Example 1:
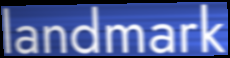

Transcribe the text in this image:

landmark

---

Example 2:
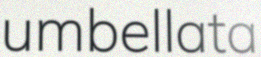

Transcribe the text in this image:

umbellata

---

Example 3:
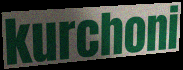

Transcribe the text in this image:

kurchoni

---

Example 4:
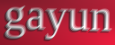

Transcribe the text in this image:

gayun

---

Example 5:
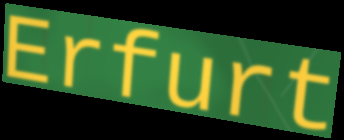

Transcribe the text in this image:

Erfurt